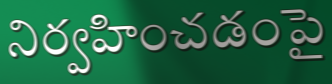
నిర్వహించడంపై